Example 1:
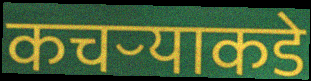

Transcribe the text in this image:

कचऱ्याकडे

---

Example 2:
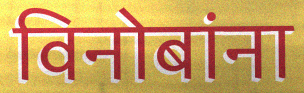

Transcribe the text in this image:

विनोबांना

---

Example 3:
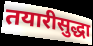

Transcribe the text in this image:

तयारीसुद्धा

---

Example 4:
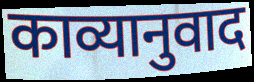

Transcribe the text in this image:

काव्यानुवाद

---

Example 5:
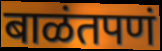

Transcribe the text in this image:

बाळंतपणं